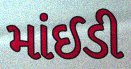
માંઈડી